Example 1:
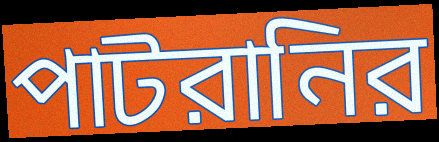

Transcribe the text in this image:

পাটরানির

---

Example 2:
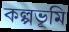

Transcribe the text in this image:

কল্পভূমি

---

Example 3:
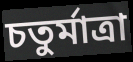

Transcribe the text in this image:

চতুর্মাত্রা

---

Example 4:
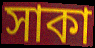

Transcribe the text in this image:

সাকা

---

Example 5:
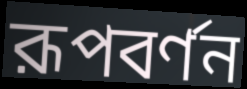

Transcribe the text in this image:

রূপবর্ণন